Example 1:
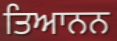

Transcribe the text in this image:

ਤਿਆਨਨ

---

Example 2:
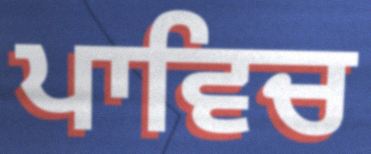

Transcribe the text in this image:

ਪਾਵਿਚ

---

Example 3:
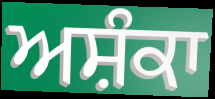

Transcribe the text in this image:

ਅਸ਼ੰਕਾ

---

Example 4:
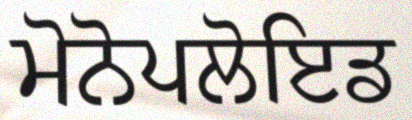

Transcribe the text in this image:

ਮੋਨੋਪਲੋਇਡ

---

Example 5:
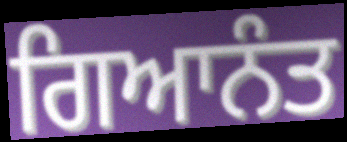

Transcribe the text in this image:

ਗਿਆਨੰਤ